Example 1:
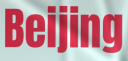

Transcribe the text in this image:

Beijing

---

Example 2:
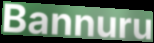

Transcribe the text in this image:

Bannuru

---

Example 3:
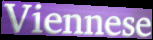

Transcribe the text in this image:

Viennese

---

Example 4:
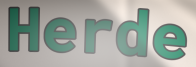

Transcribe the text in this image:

Herde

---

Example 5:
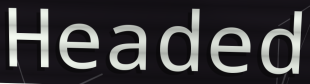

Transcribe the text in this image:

Headed